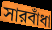
সারবাঁধা